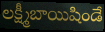
లక్ష్మీబాయిషిండే